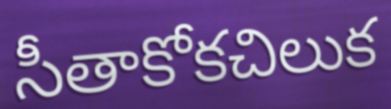
సీతాకోకచిలుక